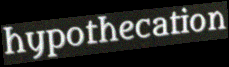
hypothecation